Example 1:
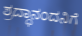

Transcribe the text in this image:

ಶ್ರದ್ಧಾನಂದನಿಗೆ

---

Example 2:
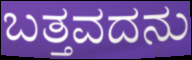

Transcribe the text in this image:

ಬತ್ತವದನು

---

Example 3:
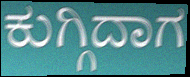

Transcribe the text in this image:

ಕುಗ್ಗಿದಾಗ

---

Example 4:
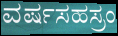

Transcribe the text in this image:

ವರ್ಷಸಹಸ್ರಂ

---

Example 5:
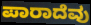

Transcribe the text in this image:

ಪಾರಾದೆವು